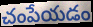
చంపేయడం